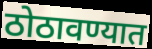
ठोठावण्यात